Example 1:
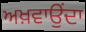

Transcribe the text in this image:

ਅਖ਼ਵਾਉਂਦਾ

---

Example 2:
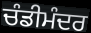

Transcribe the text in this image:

ਚੰਡੀਮੰਦਰ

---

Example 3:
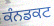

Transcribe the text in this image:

ਕੰਨਡਕਟ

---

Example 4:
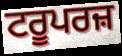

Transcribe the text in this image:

ਟਰੂਪਰਜ਼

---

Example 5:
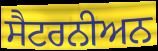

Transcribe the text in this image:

ਸੈਟਰਨੀਅਨ